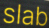
slab